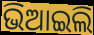
ଭିଆଇଲି